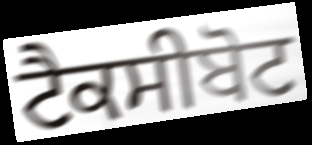
ਟੈਕਸੀਬੋਟ